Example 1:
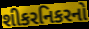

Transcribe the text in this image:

શીકરનિકરનો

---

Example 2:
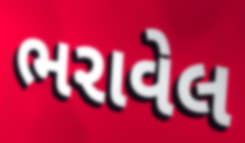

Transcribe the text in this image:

ભરાવેલ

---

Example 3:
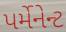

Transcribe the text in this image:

પર્મેનેન્ટ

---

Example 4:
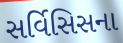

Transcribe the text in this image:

સર્વિસિસના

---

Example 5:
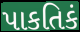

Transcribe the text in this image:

પાકતિકં